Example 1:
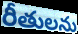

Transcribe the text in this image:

రీతులను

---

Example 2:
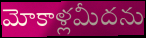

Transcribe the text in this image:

మోకాళ్లమీదను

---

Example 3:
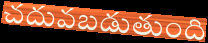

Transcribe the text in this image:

చదువబడుతుంది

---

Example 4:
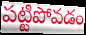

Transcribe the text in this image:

పట్టిపోవడం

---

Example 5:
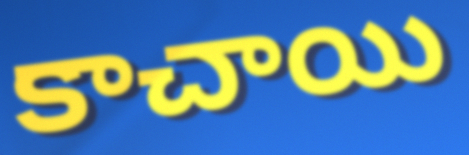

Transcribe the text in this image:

కాచాయి